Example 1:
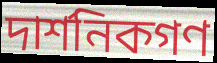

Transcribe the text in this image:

দার্শনিকগণ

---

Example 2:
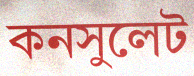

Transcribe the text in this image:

কনসুলেট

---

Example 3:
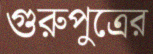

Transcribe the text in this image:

গুরুপুত্রের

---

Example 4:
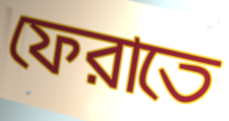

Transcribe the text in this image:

ফেরাতে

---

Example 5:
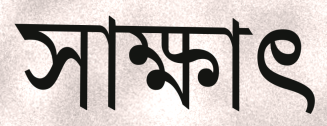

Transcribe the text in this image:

সাক্ষাৎ